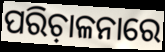
ପରିଚ଼ାଳନାରେ